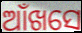
ଆଁଖସେ